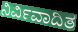
ನಿರ್ವಿವಾದಿತ